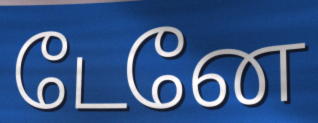
டேனே